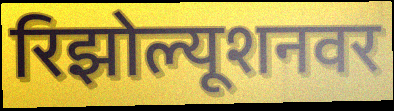
रिझोल्यूशनवर